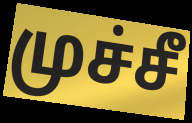
முச்சீ